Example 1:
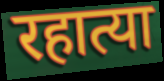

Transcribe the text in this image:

रहात्या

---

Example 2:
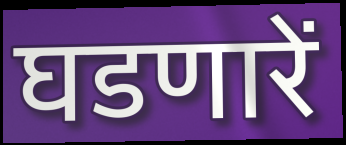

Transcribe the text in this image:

घडणारें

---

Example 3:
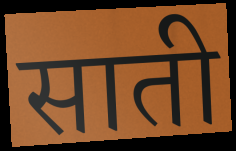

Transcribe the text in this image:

साती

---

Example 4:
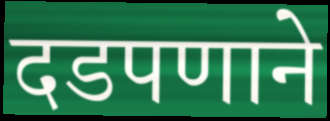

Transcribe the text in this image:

दडपणाने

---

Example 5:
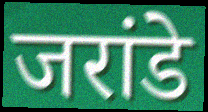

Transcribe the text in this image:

जरांडे